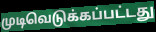
முடிவெடுக்கப்பட்டது